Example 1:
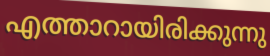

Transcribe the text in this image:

എത്താറായിരിക്കുന്നു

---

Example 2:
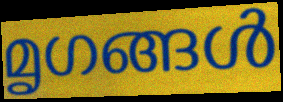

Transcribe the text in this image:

മൃഗങ്ങൾ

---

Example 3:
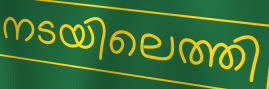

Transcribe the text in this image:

നടയിലെത്തി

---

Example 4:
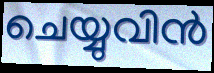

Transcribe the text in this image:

ചെയ്യുവിൻ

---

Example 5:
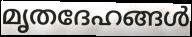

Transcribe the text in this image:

മൃതദേഹങ്ങൾ